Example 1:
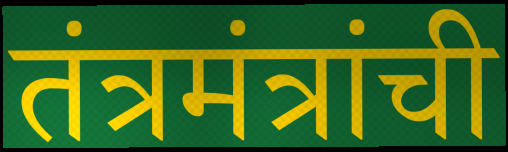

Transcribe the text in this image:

तंत्रमंत्रांची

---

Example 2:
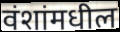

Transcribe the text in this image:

वंशांमधील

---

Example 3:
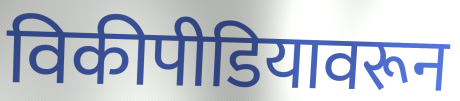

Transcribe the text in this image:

विकीपीडियावरून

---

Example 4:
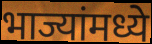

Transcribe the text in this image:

भाज्यांमध्ये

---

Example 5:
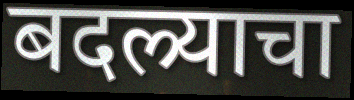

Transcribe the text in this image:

बदल्याचा